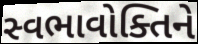
સ્વભાવોક્તિને